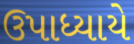
ઉપાધ્યાયે